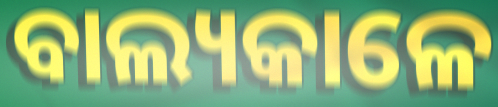
ବାଲ୍ୟକାଳେ